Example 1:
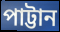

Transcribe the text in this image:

পাট্টান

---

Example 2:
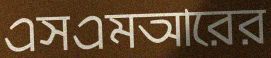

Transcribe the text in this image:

এসএমআরের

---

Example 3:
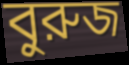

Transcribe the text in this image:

বুরুজ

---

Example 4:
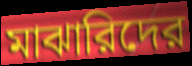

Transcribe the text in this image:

মাঝারিদের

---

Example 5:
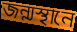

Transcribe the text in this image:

জন্মস্থানে